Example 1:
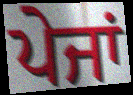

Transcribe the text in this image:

ਪੇਜਾਂ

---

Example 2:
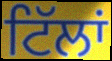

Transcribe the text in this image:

ਟਿੱਲਾਂ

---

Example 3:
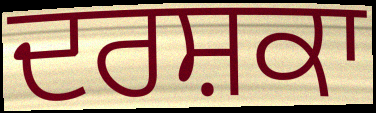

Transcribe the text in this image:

ਦਰਸ਼ਕਾ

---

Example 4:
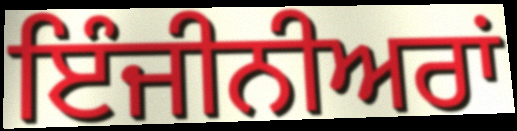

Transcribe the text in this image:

ਇੰਜੀਨੀਅਰਾਂ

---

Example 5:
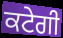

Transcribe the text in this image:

ਕਟੇਗੀ